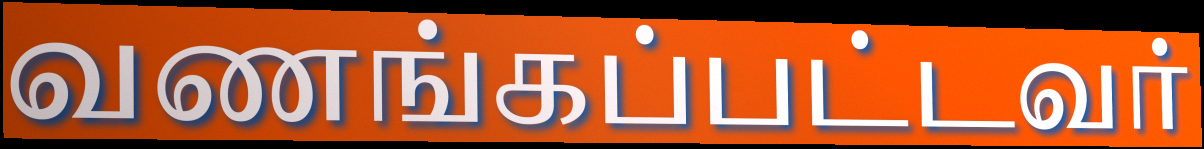
வணங்கப்பட்டவர்